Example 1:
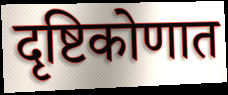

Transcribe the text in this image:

दृष्टिकोणात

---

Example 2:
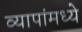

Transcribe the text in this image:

व्यापांमध्ये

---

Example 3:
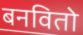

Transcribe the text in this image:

बनवितो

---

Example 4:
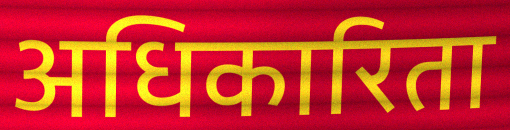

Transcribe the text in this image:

अधिकारिता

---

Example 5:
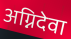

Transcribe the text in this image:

अग्निदेवा